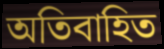
অতিবাহিত